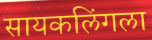
सायकलिंगला